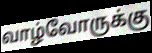
வாழ்வோருக்கு